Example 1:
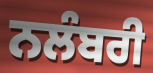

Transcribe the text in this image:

ਨਲੰਬਰੀ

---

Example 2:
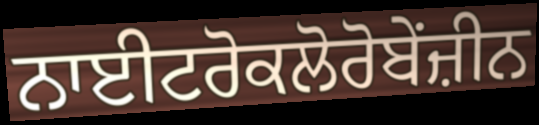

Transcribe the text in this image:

ਨਾਈਟਰੋਕਲੋਰੋਬੇਂਜ਼ੀਨ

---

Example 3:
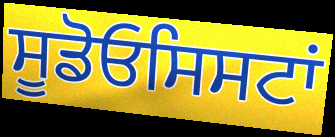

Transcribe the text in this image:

ਸੂਡੋਓਸਿਸਟਾਂ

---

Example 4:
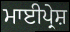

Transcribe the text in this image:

ਮਾਈਪ੍ਰੇਸ਼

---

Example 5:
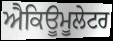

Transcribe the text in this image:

ਐਕਿਊਮੂਲੇਟਰ